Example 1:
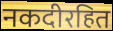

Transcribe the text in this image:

नकदीरहित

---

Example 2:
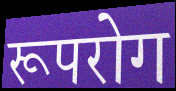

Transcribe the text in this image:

रूपरोग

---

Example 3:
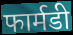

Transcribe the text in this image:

फार्मडी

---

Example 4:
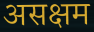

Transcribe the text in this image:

असक्षम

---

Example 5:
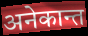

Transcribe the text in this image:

अनेकान्त